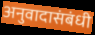
अनुवादासंबंधी